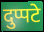
दुप्पटे